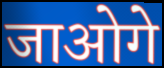
जाओगे